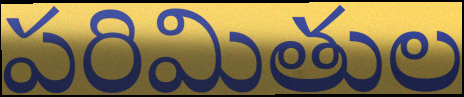
పరిమితుల